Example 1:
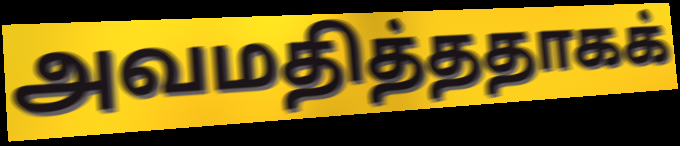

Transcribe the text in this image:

அவமதித்ததாகக்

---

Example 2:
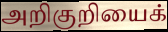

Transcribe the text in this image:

அறிகுறியைக்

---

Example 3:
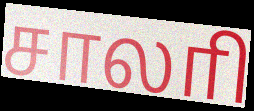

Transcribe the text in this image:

சாலரி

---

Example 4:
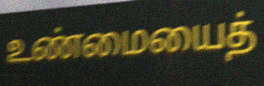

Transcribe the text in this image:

உண்மையைத்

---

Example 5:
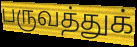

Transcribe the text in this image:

பருவத்துக்